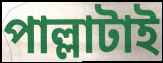
পাল্লাটাই